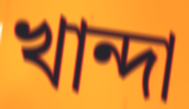
খান্দা